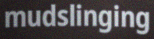
mudslinging